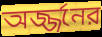
অর্জ্জনের